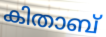
കിതാബ്